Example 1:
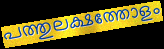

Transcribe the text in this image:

പത്തുലക്ഷത്തോളം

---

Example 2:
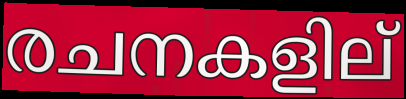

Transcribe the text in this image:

രചനകളില്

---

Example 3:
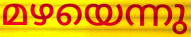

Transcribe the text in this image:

മഴയെന്നു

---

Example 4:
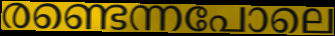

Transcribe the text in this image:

രണ്ടെന്നപോലെ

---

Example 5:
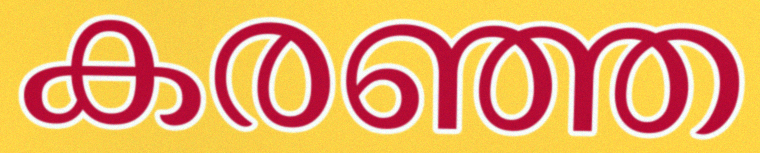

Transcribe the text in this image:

കരഞ്ഞ